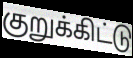
குறுக்கிட்டு